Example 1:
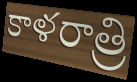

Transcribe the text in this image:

కాళరాత్రి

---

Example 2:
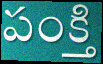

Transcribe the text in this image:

పంక్తి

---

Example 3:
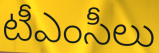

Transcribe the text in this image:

టీఎంసీలు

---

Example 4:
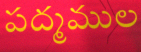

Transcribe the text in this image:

పద్మముల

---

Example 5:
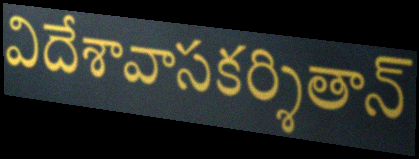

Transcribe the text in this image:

విదేశావాసకర్శితాన్